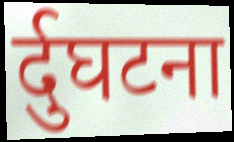
र्दुघटना